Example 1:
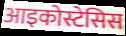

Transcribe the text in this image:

आइकोस्टेसिस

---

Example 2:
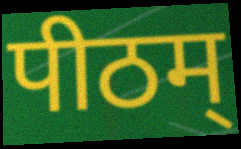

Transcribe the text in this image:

पीठम्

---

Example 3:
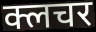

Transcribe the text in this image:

क्लचर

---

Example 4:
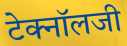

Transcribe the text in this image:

टेक्‍नॉलजी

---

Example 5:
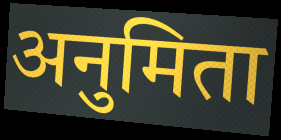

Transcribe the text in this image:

अनुमिता